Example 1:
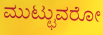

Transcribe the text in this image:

ಮುಟ್ಟುವರೋ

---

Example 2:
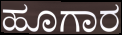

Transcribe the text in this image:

ಹೂಗಾರ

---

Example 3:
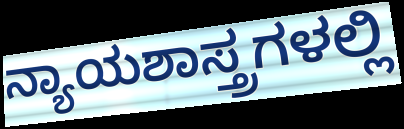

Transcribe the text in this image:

ನ್ಯಾಯಶಾಸ್ತ್ರಗಳಲ್ಲಿ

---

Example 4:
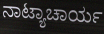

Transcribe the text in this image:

ನಾಟ್ಯಾಚಾರ್ಯ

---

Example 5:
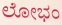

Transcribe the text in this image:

ಲೋಭಂ